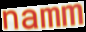
namm